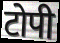
टोपी